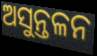
ଅସୁନ୍ତଳନ